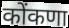
कोंकणा